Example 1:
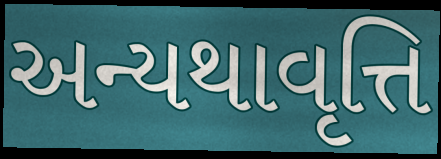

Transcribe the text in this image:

અન્યથાવૃત્તિ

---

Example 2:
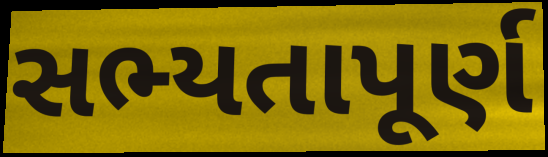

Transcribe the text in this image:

સભ્યતાપૂર્ણ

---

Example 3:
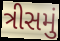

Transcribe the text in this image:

ત્રીસમું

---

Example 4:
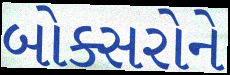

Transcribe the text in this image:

બોક્સરોને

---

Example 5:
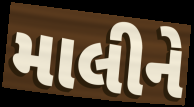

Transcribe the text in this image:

માલીને